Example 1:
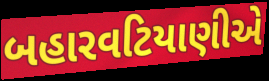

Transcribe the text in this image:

બહારવટિયાણીએ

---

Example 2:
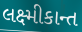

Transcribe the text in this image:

લક્ષ્મીકાન્ત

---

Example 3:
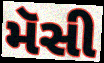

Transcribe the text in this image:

મૅસી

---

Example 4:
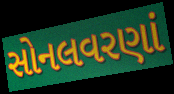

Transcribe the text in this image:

સોનલવરણાં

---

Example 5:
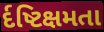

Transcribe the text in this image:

ર્દષ્ટિક્ષમતા